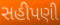
સહીપણી